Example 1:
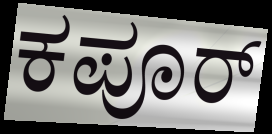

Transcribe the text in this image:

ಕಪೂರ್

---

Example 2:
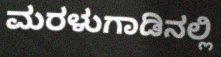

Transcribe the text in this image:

ಮರಳುಗಾಡಿನಲ್ಲಿ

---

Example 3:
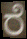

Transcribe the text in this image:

ರೆ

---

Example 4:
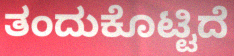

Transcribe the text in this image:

ತಂದುಕೊಟ್ಟಿದೆ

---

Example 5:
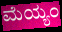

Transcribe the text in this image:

ಮೆಯ್ಯಂ